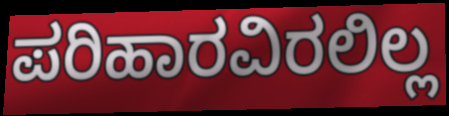
ಪರಿಹಾರವಿರಲಿಲ್ಲ